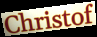
Christof